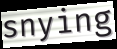
snying